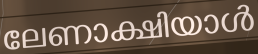
ലേണാക്ഷിയാൾ